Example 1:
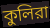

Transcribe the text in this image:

কুলিরা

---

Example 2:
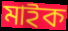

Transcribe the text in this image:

মাইক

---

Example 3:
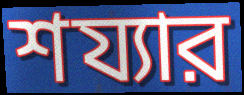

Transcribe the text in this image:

শয্যার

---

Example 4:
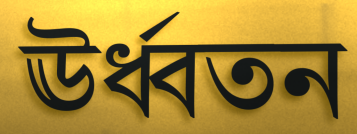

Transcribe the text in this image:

ঊর্ধ্বতন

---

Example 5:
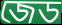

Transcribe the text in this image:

জেড